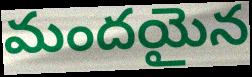
మందయైన